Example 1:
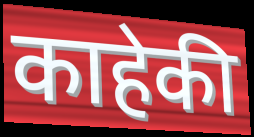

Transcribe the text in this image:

काहेकी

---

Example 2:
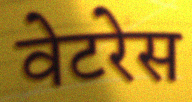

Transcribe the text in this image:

वेटरेस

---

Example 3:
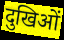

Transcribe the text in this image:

दुखिओं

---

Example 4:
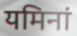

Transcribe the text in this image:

यमिनां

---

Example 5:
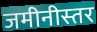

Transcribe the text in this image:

जमीनीस्तर